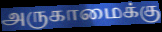
அருகாமைக்கு